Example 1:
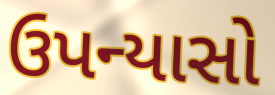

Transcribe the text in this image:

ઉપન્યાસો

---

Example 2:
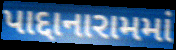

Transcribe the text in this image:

પાદ્દાનારામમાં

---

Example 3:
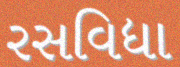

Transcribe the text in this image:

રસવિદ્યા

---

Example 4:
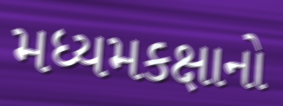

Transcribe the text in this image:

મધ્યમકક્ષાનો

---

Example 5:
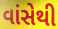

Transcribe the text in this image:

વાંસેથી